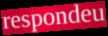
respondeu